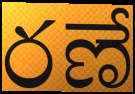
రణే